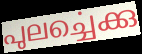
പുലൎച്ചെക്കു